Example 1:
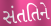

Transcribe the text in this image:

સંતતિને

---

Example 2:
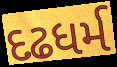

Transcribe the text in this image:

દઢધર્મ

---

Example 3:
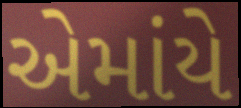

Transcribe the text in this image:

એમાંયે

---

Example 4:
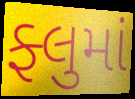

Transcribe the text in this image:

ફ્લુમાં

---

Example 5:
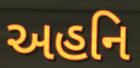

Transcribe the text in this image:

અહનિ